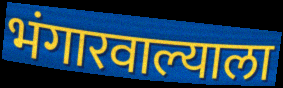
भंगारवाल्याला